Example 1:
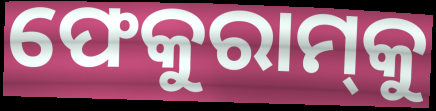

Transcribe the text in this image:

ଫେକୁରାମ୍‌କୁ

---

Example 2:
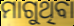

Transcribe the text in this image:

ମାଗୁଥିବା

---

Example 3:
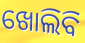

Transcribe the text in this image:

ଖୋଲିବି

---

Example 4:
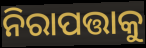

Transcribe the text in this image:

ନିରାପତ୍ତାକୁ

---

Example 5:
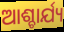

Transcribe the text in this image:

ଆଶ୍ଚାର୍ଯ୍ୟ